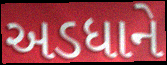
અડધાને